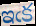
ఇఁక